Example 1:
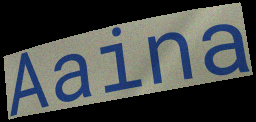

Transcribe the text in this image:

Aaina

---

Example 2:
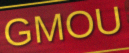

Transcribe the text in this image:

GMOU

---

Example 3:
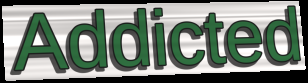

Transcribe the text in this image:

Addicted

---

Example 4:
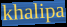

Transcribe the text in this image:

khalipa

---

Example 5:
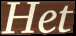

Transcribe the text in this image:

Het